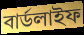
বার্ডলাইফ